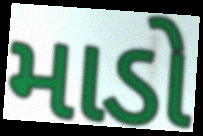
માડો